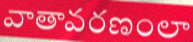
వాతావరణంలా